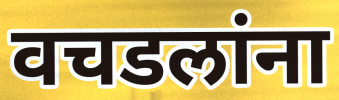
वचडलांना